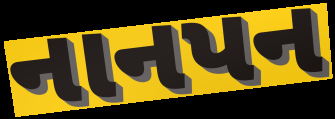
નાનપન